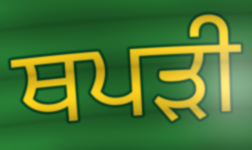
ਥਪੜੀ